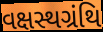
વક્ષસ્થગ્રંથિ